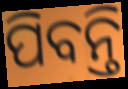
ପିବନ୍ତି